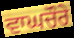
ਵਾਘਚੌਰੇ